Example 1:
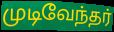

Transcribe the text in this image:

முடிவேந்தர்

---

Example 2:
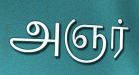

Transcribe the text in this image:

அஞர்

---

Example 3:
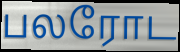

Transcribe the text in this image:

பலரோட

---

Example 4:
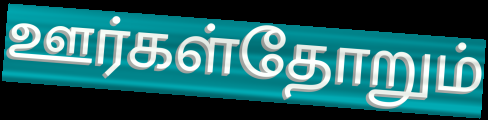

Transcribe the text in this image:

ஊர்கள்தோறும்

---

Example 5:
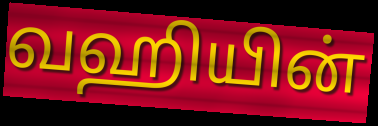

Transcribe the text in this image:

வஹியின்